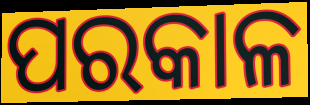
ପରକାଳ